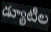
డ్యూటీల